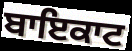
ਬਾਇਕਾਟ